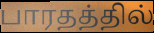
பாரதத்தில்